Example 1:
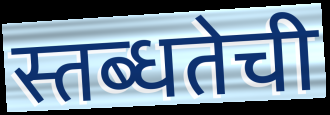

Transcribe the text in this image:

स्तब्धतेची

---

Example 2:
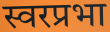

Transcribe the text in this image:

स्वरप्रभा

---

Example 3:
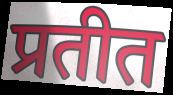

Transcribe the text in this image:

प्रतीत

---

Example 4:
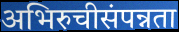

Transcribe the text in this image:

अभिरुचीसंपन्नता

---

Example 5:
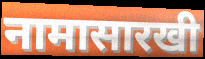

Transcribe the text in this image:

नामासारखी